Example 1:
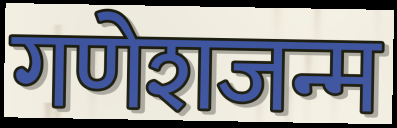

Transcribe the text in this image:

गणेशजन्म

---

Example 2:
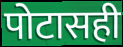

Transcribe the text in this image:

पोटासही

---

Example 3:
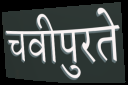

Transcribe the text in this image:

चवीपुरते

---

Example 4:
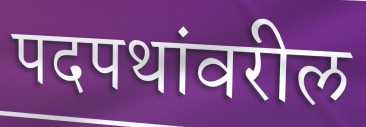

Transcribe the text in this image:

पदपथांवरील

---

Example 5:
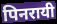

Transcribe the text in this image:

पिनरायी